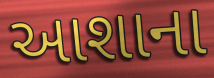
આશાના